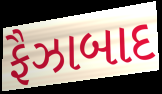
ફૈઝાબાદ